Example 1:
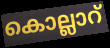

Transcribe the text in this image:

കൊല്ലാറ്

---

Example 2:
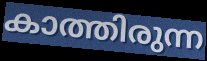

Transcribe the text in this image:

കാത്തിരുന്ന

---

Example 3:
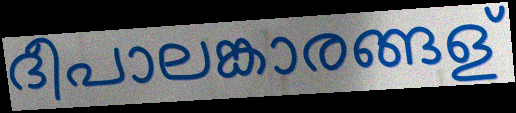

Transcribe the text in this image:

ദീപാലങ്കാരങ്ങള്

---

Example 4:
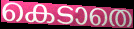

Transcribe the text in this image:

കെടാതെ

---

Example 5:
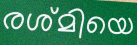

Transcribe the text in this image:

രശ്മിയെ